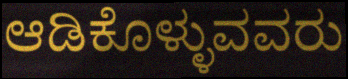
ಆಡಿಕೊಳ್ಳುವವರು